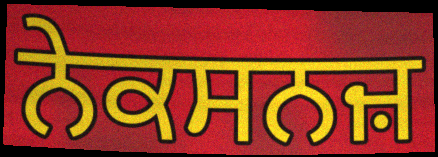
ਨੇਕਸਨਜ਼